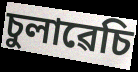
চুলাৱেচি